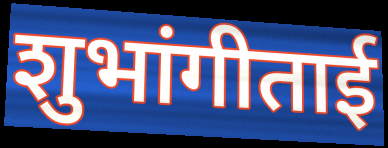
शुभांगीताई